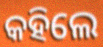
କହିଲେ